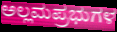
ಅಲ್ಲಮಪ್ರಭುಗಳ